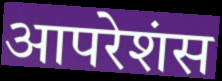
आपरेशंस